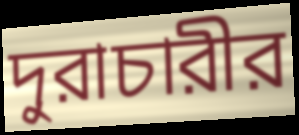
দুরাচারীর